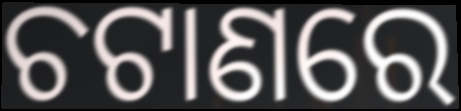
ଚଟାଣରେ